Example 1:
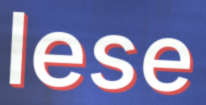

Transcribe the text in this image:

lese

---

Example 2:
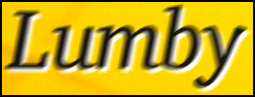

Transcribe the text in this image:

Lumby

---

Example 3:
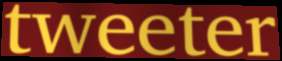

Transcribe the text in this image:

tweeter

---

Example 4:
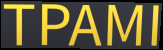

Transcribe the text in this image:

TPAMI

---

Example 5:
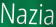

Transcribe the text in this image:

Nazia